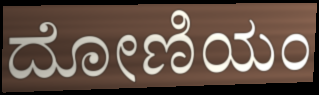
ದೋಣಿಯಂ